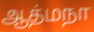
ஆத்மநா